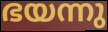
ഭയന്നു